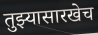
तुझ्यासारखेच